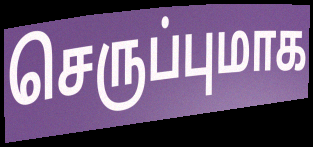
செருப்புமாக